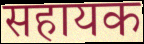
सहायक